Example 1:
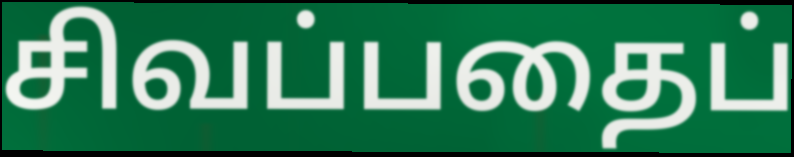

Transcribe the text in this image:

சிவப்பதைப்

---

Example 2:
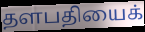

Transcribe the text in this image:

தளபதியைக்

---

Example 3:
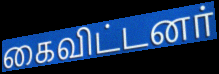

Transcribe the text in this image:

கைவிட்டனர்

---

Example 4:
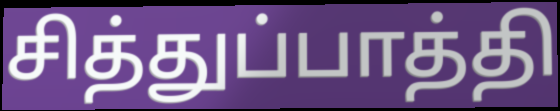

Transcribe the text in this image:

சித்துப்பாத்தி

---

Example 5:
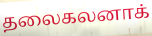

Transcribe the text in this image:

தலைகலனாக்